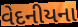
વેદનીયના